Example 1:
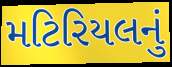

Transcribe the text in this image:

મટિરિયલનું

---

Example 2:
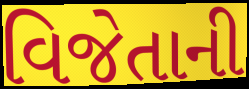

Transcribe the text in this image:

વિજેતાની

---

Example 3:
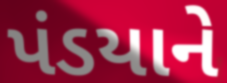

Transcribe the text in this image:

પંડયાને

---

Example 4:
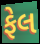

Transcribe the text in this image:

ફેલ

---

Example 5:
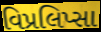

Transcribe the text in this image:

વિપ્રલિપ્સા